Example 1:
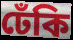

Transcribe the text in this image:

ঢেঁকি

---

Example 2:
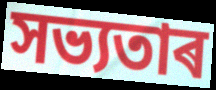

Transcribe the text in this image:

সভ্যতাৰ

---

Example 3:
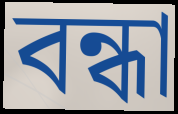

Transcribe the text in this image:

বন্ধা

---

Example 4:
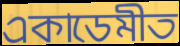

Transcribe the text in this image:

একাডেমীত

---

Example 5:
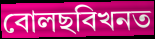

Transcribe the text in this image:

বোলছবিখনত